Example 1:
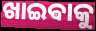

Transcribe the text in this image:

ଖାଇଵାକୁ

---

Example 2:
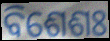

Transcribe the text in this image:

ବିଶେଶଃ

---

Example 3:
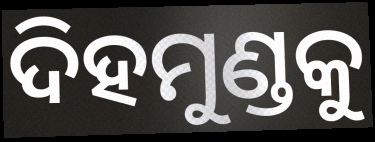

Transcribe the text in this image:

ଦିହମୁଣ୍ଡକୁ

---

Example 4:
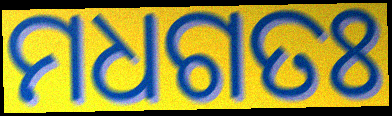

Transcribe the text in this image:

ମଧଗତଃ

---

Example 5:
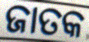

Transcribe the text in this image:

ଜାତକ